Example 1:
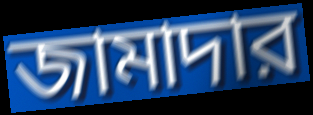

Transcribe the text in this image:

জামাদার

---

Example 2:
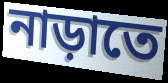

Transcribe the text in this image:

নাড়াতে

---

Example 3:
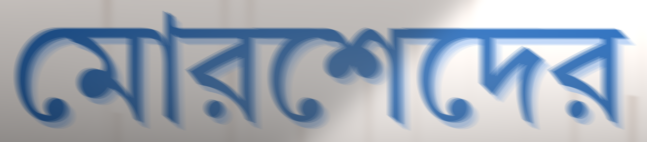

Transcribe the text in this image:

মোরশেদের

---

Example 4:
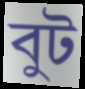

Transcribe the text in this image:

বুট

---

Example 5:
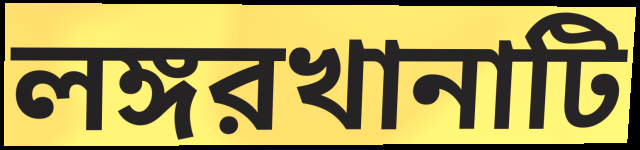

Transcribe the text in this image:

লঙ্গরখানাটি